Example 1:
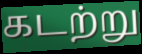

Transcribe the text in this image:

கடற்று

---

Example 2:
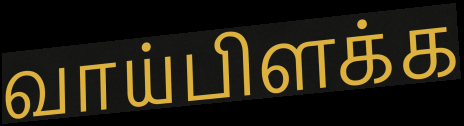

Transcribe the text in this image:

வாய்பிளக்க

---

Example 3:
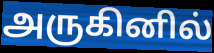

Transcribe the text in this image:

அருகினில்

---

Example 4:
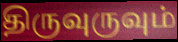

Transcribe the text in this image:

திருவுருவும்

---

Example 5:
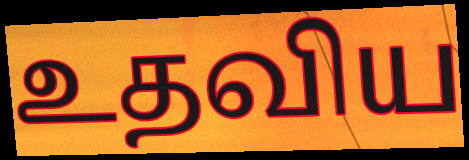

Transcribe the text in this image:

உதவிய